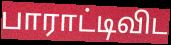
பாராட்டிவிட